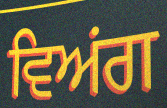
ਵਿਅਂਗ